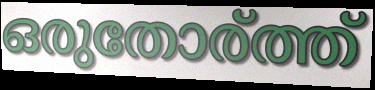
ഒരുതോര്ത്ത്